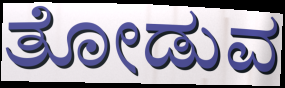
ತೋಡುವ